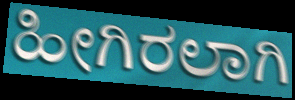
ಹೀಗಿರಲಾಗಿ